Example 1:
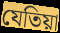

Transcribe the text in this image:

যেতিয়া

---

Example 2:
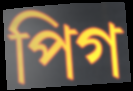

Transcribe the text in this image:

পিগ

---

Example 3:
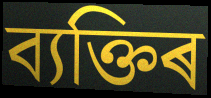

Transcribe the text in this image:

ব্যক্তিৰ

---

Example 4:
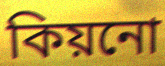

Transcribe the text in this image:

কিয়নো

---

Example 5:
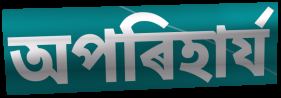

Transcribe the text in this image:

অপৰিহাৰ্য